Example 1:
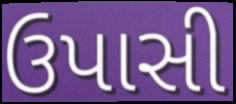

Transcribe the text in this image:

ઉપાસી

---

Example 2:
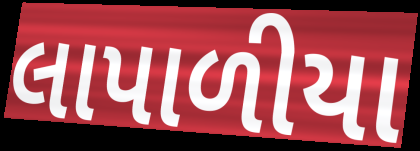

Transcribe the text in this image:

લાપાળીયા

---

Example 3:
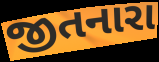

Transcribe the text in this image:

જીતનારા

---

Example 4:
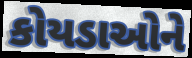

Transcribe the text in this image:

કોયડાઓને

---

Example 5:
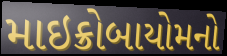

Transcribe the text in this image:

માઇક્રોબાયોમનો